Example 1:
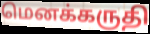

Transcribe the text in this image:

மெனக்கருதி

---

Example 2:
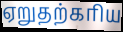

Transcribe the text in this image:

ஏறுதற்கரிய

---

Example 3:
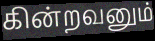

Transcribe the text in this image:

கின்றவனும்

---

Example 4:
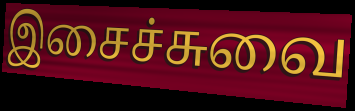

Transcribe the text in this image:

இசைச்சுவை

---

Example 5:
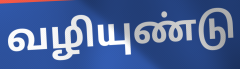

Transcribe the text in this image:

வழியுண்டு